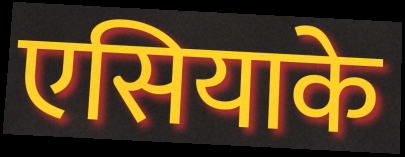
एसियाके